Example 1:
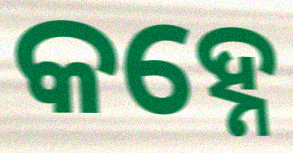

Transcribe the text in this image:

କହ୍ନେ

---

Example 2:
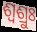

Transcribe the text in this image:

ଶ୍ଵଶ୍ରୁଃ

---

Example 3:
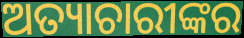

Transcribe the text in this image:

ଅତ୍ୟାଚାରୀଙ୍କର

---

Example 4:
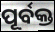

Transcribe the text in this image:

ପୂର୍ବକ୍ତ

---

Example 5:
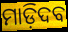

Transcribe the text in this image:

ମାଡ଼ିଦବ